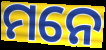
ମନେ